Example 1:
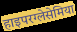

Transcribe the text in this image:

हाइपरग्लेसेमिया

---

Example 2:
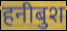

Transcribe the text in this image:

हनीबुश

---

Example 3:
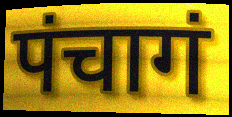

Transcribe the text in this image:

पंचागं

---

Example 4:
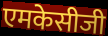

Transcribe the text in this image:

एमकेसीजी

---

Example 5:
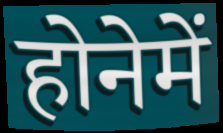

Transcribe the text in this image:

होनेमें